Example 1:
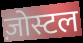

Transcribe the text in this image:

ज़ोस्टल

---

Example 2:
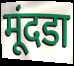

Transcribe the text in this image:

मूंदडा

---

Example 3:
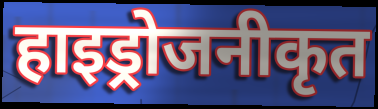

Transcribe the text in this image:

हाइड्रोजनीकृत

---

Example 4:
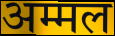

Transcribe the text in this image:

अम्मल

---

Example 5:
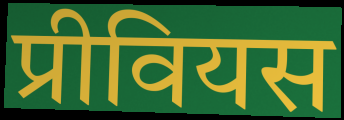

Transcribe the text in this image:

प्रीवियस